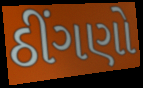
ઠીંગણો